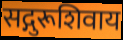
सद्गुरूशिवाय